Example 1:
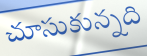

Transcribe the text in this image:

చూసుకున్నది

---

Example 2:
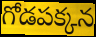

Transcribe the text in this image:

గోడపక్కన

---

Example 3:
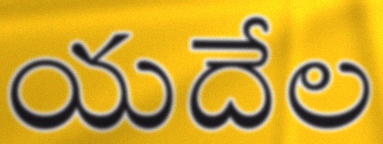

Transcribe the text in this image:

యదేల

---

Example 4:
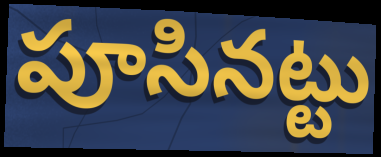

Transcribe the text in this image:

పూసినట్టు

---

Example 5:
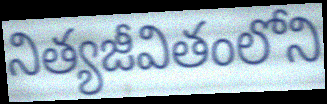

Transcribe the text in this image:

నిత్యజీవితంలోని